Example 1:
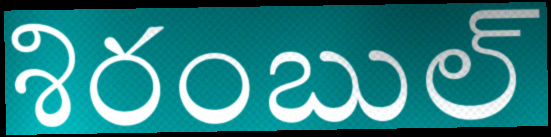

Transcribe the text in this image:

శిరంబుల్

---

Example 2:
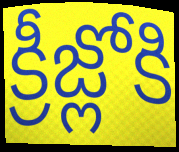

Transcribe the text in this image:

క్రీజ్లోకి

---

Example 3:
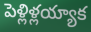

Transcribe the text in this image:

పెళ్లిళ్లయ్యాక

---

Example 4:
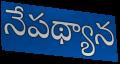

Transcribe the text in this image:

నేపథ్యాన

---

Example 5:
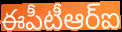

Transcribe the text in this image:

ఈపీటీఆర్ఐ